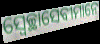
ସ୍ୱେଚ୍ଛାସେବୀମାନେ